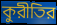
কুরীতির